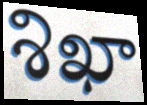
శిఖా